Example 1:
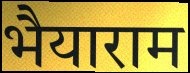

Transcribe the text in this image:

भैयाराम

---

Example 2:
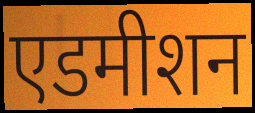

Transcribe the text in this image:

एडमीशन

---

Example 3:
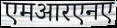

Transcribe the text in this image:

एमआरएनए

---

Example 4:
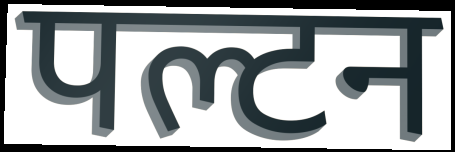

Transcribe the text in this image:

पल्टन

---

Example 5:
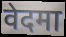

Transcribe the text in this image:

वेदमा